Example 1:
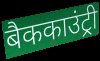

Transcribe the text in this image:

बैककाउंट्री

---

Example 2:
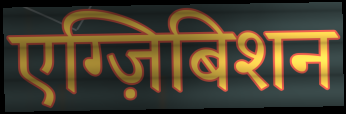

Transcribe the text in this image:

एग्ज़िबिशन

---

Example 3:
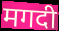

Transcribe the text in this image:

मगदी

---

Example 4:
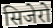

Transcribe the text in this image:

सिजेरो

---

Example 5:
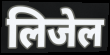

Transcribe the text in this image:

लिजेल